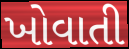
ખોવાતી